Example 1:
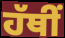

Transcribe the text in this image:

ਹੱਥੀਂ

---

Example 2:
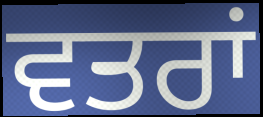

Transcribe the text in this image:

ਵਤਰਾਂ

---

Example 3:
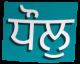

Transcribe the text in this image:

ਧੌਲੁ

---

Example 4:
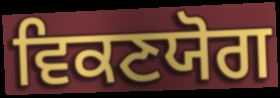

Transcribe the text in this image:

ਵਿਕਣਯੋਗ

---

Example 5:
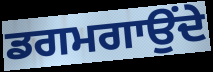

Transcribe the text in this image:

ਡਗਮਗਾਉਂਦੇ